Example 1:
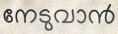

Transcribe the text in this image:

നേടുവാൻ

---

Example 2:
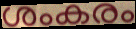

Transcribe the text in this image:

ശംകരം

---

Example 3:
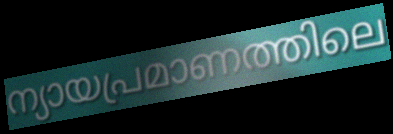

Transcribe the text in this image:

ന്യായപ്രമാണത്തിലെ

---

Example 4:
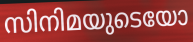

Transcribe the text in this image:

സിനിമയുടെയോ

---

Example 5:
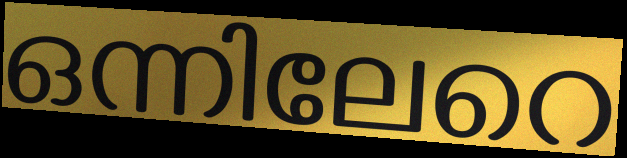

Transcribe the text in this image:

ഒന്നിലേറെ